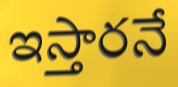
ఇస్తారనే